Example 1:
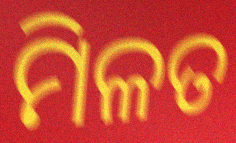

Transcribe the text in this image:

ମିଳତ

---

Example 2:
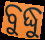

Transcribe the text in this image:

ବୁଦ୍ଧୁ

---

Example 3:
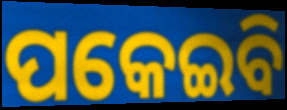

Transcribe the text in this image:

ପକେଇବି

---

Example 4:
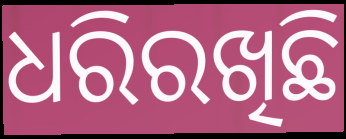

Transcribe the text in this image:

ଧରିରଖିଛି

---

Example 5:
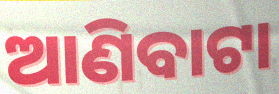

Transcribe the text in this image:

ଆଣିବାଟା